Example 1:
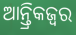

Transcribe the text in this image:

ଆନ୍ତ୍ରିକଜ୍ଵର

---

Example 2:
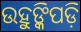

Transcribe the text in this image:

ଉହୁଙ୍କିପଡ଼ି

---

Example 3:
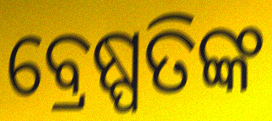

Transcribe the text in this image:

ବ୍ରେଷ୍ପତିଙ୍କ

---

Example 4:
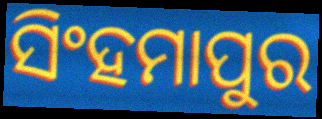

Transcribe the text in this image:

ସିଂହମାପୁର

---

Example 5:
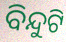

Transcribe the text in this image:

ବିନ୍ଦୁଟି